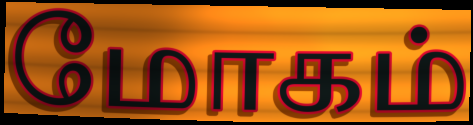
மோகம்